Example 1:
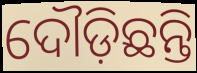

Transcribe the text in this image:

ଦୌଡ଼ିଛନ୍ତି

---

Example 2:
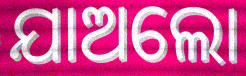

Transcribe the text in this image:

ଯାଅଲୋ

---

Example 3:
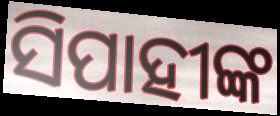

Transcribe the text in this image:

ସିପାହୀଙ୍କ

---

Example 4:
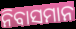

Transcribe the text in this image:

ନିବାସମାନ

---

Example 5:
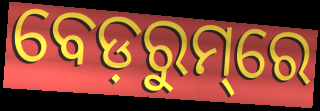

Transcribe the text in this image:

ବେଡ଼ରୁମ୍‌ରେ